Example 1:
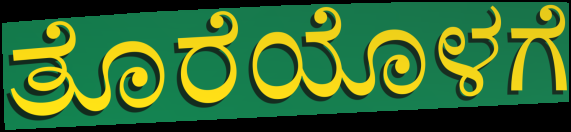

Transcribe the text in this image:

ತೊರೆಯೊಳಗೆ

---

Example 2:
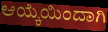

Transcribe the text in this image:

ಆಯ್ಕೆಯಿಂದಾಗಿ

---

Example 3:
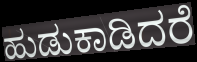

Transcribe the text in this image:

ಹುಡುಕಾಡಿದರೆ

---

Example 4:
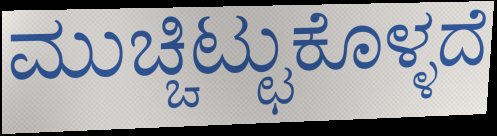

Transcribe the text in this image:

ಮುಚ್ಚಿಟ್ಟುಕೊಳ್ಳದೆ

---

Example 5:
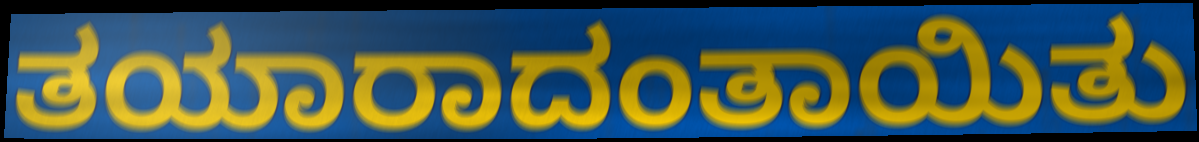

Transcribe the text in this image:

ತಯಾರಾದಂತಾಯಿತು